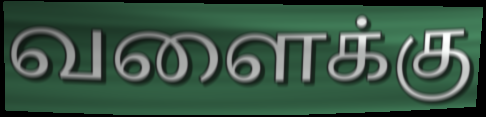
வளைக்கு